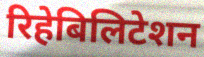
रिहेबिलिटेशन